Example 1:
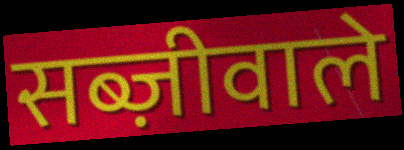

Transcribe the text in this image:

सब्ज़ीवाले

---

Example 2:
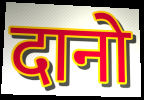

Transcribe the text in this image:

दानो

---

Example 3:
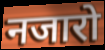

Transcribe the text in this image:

नजारो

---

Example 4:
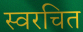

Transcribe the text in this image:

स्वरचित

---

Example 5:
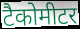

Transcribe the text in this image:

टैकोमीटर